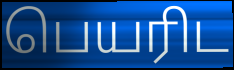
பெயரிட